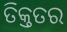
ତିକ୍ତତର